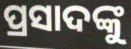
ପ୍ରସାଦଙ୍କୁ